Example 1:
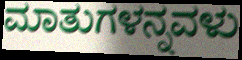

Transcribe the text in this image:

ಮಾತುಗಳನ್ನವಳು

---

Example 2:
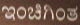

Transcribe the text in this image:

ಇಂಚಿಗಿಂತ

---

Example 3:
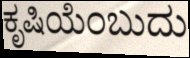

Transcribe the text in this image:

ಕೃಷಿಯೆಂಬುದು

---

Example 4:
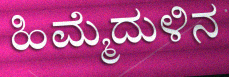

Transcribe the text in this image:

ಹಿಮ್ಮೆದುಳಿನ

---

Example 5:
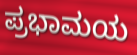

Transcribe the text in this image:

ಪ್ರಭಾಮಯ